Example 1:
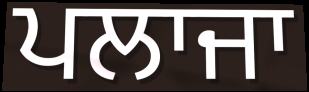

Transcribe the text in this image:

ਪਲਾਜਾ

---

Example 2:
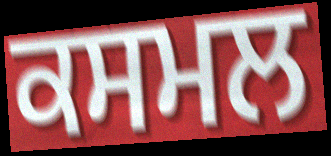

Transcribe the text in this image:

ਕਸਮਲ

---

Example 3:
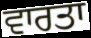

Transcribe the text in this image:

ਵਾਰਤਾ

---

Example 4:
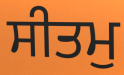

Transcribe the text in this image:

ਸੀਤਮੁ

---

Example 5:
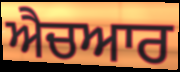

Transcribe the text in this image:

ਐਚਆਰ